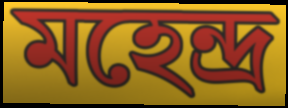
মহেন্দ্ৰ